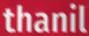
thanil